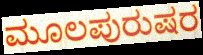
ಮೂಲಪುರುಷರ